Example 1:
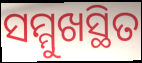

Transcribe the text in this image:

ସମ୍ମୁଖସ୍ଥିତ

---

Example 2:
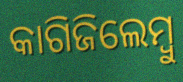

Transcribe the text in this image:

କାଗିଜିଲେମ୍ବୁ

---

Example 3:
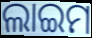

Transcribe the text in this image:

ଲାଇମ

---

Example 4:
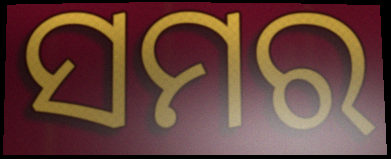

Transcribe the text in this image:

ସମର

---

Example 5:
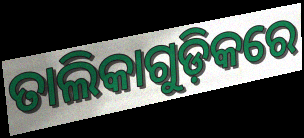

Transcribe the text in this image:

ତାଲିକାଗୁଡ଼ିକରେ